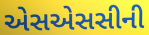
એસએસસીની